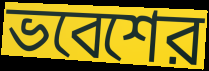
ভবেশের